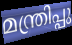
മന്ത്രിപ്പു